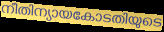
നീതിന്യായകോടതിയുടെ